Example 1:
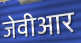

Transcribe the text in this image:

जेवीआर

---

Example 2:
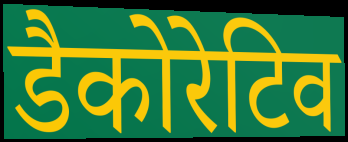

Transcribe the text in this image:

डैकोरेटिव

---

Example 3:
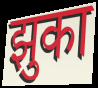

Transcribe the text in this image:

झुका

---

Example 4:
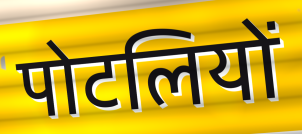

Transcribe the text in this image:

पोटलियों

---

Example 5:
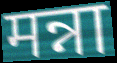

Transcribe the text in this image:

मन्ना